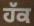
ਹੱਕ